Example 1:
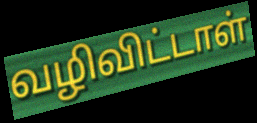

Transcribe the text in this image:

வழிவிட்டாள்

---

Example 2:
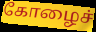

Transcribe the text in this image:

கோழைச்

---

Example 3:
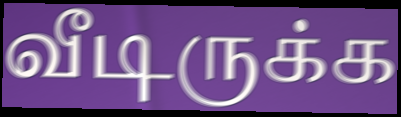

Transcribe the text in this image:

வீடிருக்க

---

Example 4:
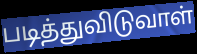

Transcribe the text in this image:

படித்துவிடுவாள்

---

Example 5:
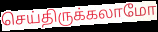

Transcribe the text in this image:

செய்திருக்கலாமோ